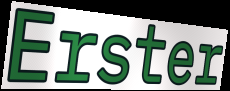
Erster